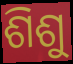
ଶିଶୁ